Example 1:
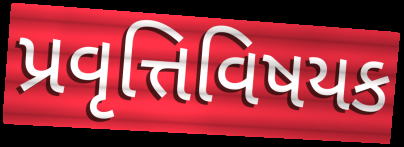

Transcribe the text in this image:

પ્રવૃત્તિવિષયક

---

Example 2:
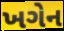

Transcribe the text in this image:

ખગેન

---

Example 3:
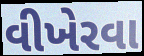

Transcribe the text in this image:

વીખેરવા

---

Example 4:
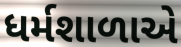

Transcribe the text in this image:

ધર્મશાળાએ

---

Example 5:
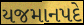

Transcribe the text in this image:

યજમાનપદે